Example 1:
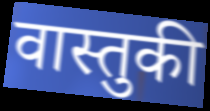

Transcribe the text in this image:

वास्तुकी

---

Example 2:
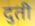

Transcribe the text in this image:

दुती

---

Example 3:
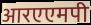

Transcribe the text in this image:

आरएएमपी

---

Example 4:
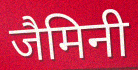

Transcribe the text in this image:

जैमिनी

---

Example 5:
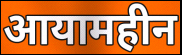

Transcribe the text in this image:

आयामहीन